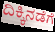
ದಿಕ್ಕಿನಡೆಗೆ